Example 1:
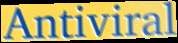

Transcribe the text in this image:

Antiviral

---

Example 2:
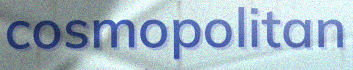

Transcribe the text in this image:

cosmopolitan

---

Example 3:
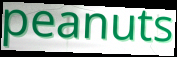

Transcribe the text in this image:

peanuts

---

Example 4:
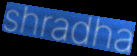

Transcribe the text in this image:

shradha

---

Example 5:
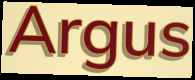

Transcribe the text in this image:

Argus